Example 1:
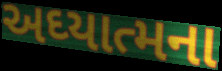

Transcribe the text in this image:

અઘ્યાત્મના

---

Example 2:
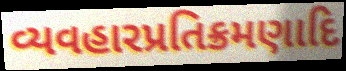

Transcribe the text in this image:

વ્યવહારપ્રતિક્રમણાદિ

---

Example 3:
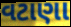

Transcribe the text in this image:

વટાણા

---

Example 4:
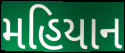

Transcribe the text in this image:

મહિયાન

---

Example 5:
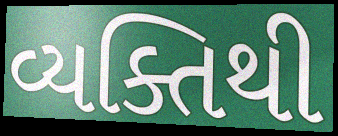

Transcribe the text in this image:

વ્યક્તિથી